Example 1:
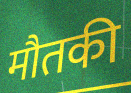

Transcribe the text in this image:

मौतकी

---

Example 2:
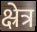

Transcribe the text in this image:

क्ष्रेत्र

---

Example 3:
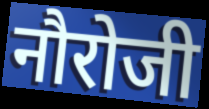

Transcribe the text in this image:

नौरोजी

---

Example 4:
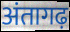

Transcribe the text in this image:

अंतागढ़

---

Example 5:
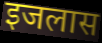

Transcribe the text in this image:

इजलास